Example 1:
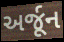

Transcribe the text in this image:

અર્જૂન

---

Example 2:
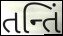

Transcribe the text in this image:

તન્તિં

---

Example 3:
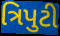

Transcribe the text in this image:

ત્રિપુટી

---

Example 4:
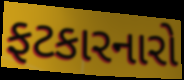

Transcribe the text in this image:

ફટકારનારો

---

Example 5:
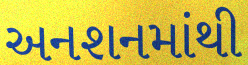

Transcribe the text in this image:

અનશનમાંથી